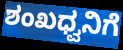
ಶಂಖಧ್ವನಿಗೆ